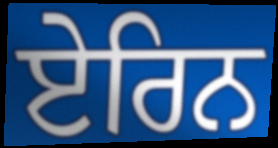
ਏਰਿਨ